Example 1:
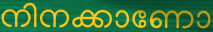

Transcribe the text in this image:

നിനക്കാണോ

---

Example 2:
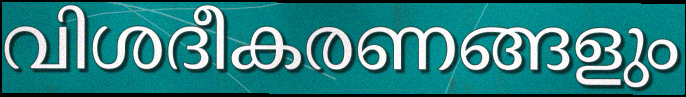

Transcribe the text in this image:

വിശദീകരണങ്ങളും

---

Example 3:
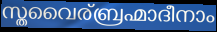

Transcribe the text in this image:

സ്തവൈര്ബ്രഹ്മാദീനാം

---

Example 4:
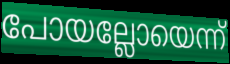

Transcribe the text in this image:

പോയല്ലോയെന്ന്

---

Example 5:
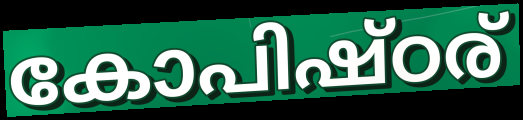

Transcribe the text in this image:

കോപിഷ്ഠര്